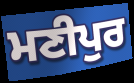
ਮਣੀਪੁਰ